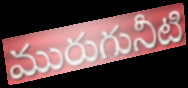
మురుగునీటి